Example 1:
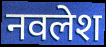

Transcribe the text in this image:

नवलेश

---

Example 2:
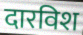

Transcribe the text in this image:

दारविश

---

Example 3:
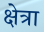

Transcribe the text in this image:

क्षेत्रा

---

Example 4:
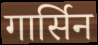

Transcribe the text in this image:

गार्सिन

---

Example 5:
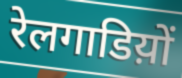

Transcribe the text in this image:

रेलगाडिय़ों